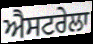
ਐਸਟਰੇਲਾ